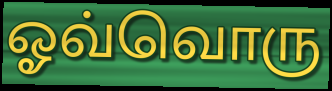
ஓவ்வொரு